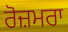
ਰੋਜ਼ਮਰਾ